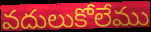
వదులుకోలేము